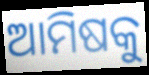
ଆମିଷକୁ